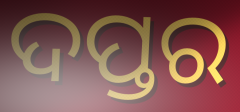
ଦପ୍ତର